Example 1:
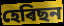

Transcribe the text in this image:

হেৰিছন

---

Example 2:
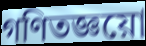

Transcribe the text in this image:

গণিতজ্ঞয়ো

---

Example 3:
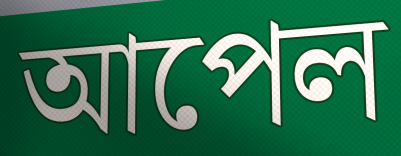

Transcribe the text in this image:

আপেল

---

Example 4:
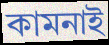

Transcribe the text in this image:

কামনাই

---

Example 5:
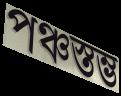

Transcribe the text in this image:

পঞ্চস্তম্ভ